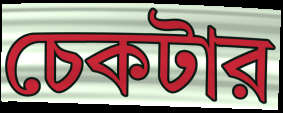
চেকটার